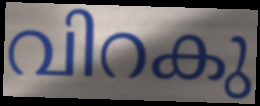
വിറകു